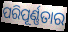
ପରିପୂର୍ଣ୍ଣତାର